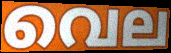
വെല